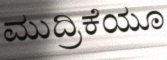
ಮುದ್ರಿಕೆಯೂ